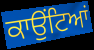
ਕਾਉਂਟਿਆਂ